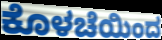
ಕೊಳಚೆಯಿಂದ